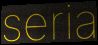
seria